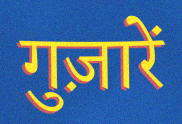
गुज़ारें